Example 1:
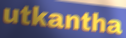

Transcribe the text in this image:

utkantha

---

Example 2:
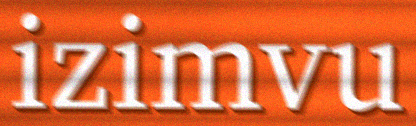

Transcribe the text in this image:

izimvu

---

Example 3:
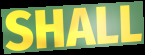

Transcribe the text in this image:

SHALL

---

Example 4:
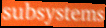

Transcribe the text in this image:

subsystems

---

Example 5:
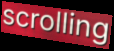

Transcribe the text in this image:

scrolling